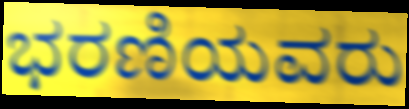
ಭರಣಿಯವರು